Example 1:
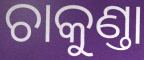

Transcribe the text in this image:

ଚାକୁଣ୍ତା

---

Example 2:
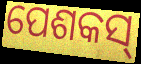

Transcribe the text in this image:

ପେଶକସ୍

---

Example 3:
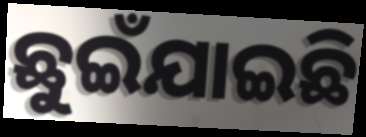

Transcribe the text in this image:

ଛୁଇଁଯାଇଛି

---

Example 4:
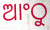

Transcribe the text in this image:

ଆଂଠୁ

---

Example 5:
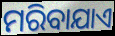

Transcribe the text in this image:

ମରିବାଯାଏ